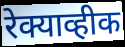
रेक्याव्हीक